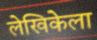
लेखिकेला